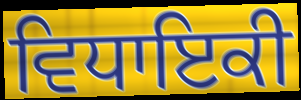
ਵਿਧਾਇਕੀ